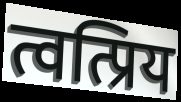
त्वत्प्रिय